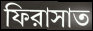
ফিরাসাত